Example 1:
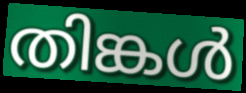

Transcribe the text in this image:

തിങ്കൾ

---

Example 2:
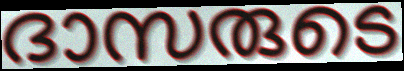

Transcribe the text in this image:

ദാസരുടെ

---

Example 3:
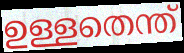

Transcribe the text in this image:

ഉള്ളതെന്ത്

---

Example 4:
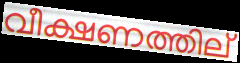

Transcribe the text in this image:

വീക്ഷണത്തില്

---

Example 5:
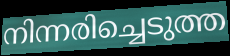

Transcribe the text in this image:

നിന്നരിച്ചെടുത്ത